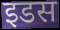
इडस